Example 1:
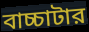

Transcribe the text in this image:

বাচ্চাটার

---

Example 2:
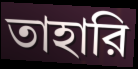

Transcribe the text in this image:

তাহারি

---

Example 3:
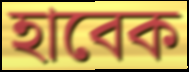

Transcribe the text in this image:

হাবেক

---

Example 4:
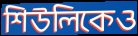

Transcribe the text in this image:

শিউলিকেও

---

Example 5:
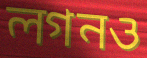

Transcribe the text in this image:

লগনও